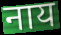
नाय